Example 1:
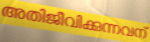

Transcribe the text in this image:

അതിജീവിക്കുന്നവന്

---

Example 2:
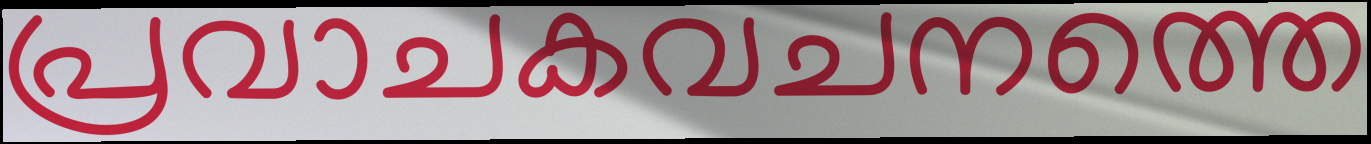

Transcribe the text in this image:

പ്രവാചകവചനത്തെ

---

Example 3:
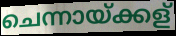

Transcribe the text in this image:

ചെന്നായ്ക്കള്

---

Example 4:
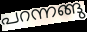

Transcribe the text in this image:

പറന്നങ്ങു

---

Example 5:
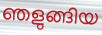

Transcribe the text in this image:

ഞളുങ്ങിയ